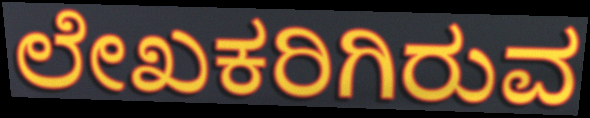
ಲೇಖಕರಿಗಿರುವ